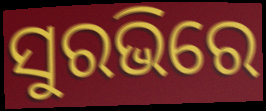
ସୁରଭିରେ